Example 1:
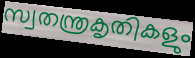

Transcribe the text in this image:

സ്വതന്ത്രകൃതികളും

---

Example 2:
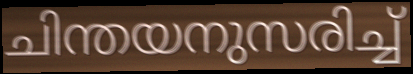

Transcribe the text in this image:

ചിന്തയനുസരിച്ച്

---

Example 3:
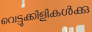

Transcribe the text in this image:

വെട്ടുക്കിളികൾക്കു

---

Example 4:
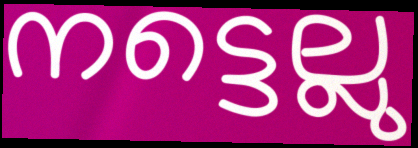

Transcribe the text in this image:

നട്ടെല്ലു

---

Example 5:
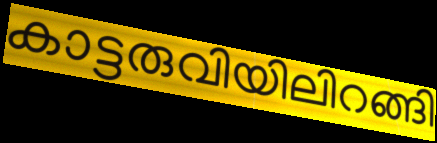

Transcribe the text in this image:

കാട്ടരുവിയിലിറങ്ങി